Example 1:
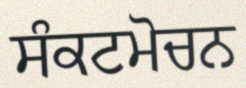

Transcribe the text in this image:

ਸੰਕਟਮੋਚਨ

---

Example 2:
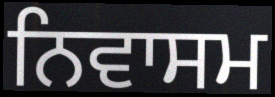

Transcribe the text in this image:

ਨਿਵਾਸਮ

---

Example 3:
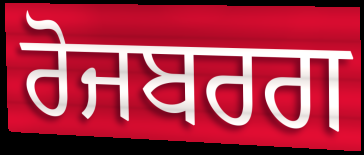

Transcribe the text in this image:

ਰੋਜਬਰਗ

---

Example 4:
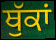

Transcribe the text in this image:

ਥੁੱਕਾਂ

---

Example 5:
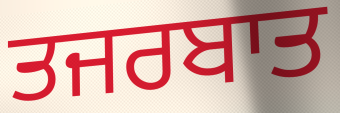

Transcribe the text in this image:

ਤਜਰਬਾਤ